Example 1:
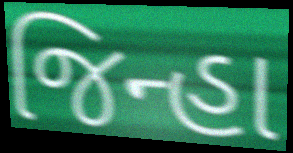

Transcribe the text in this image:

જિન્હા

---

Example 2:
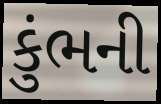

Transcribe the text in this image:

કુંભની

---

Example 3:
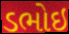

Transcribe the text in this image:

ડભોઇ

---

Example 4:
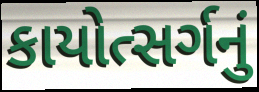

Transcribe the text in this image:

કાયોત્સર્ગનું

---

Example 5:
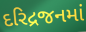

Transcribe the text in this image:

દરિદ્રજનમાં